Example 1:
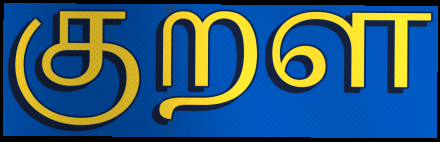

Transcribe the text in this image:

குறள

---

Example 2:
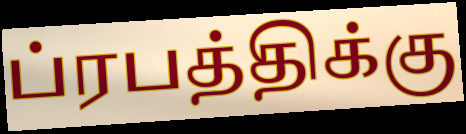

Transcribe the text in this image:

ப்ரபத்திக்கு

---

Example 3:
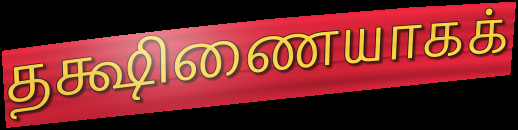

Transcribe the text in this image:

தக்ஷிணையாகக்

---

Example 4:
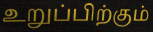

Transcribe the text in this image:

உறுப்பிற்கும்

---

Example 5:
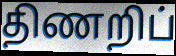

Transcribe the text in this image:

திணறிப்